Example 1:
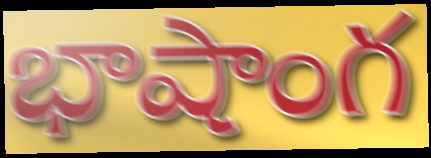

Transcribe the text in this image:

భాషాంగ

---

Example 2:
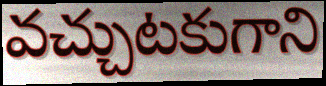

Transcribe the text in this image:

వచ్చుటకుగాని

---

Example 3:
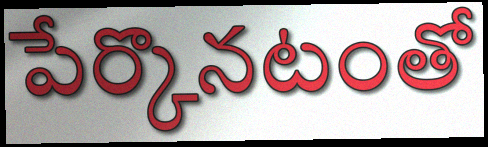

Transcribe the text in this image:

పేర్కొనటంతో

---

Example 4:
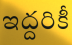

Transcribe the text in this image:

ఇద్దరికీ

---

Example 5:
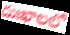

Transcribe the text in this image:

దుఃఖాలలో